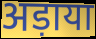
अड़ाया